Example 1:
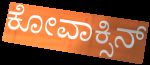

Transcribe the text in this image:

ಕೋವಾಕ್ಸಿನ್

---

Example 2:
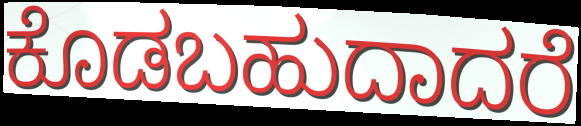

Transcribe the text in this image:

ಕೊಡಬಹುದಾದರೆ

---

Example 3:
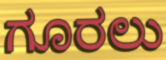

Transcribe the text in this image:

ಗೂರಲು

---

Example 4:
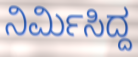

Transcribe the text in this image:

ನಿರ್ಮಿಸಿದ್ದ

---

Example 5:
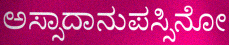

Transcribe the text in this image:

ಅಸ್ಸಾದಾನುಪಸ್ಸಿನೋ